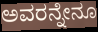
ಅವರನ್ನೇನೂ